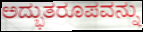
ಅದ್ಭುತರೂಪವನ್ನು